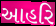
આહરિ